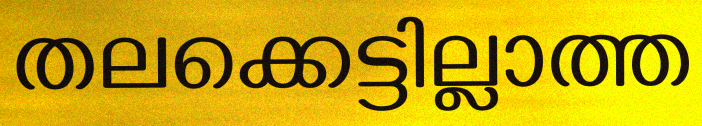
തലക്കെട്ടില്ലാത്ത